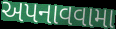
અપનાવવામા